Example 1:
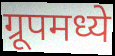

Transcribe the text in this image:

ग्रूपमध्ये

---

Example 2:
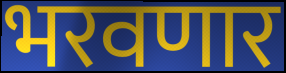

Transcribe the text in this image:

भरवणार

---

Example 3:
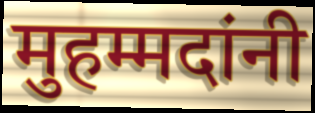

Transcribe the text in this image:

मुहम्मदांनी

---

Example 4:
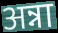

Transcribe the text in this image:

अन्ना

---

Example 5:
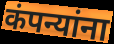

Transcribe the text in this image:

कंपन्यांना